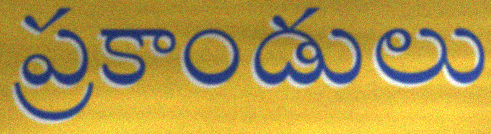
ప్రకాండులు